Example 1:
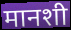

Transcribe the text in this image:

मानशी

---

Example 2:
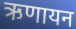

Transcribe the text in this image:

ऋणायन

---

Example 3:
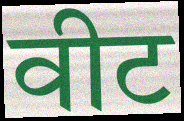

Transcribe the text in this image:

वीट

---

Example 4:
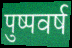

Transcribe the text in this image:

पुष्पवर्ष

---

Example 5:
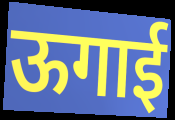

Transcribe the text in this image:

ऊगाई